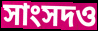
সাংসদও